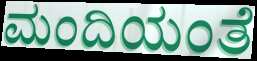
ಮಂದಿಯಂತೆ